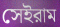
সেইরাম